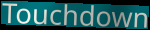
Touchdown